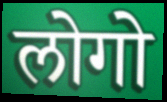
लोगो